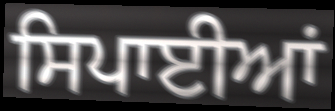
ਸਿਪਾਈਆਂ